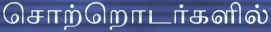
சொற்றொடர்களில்